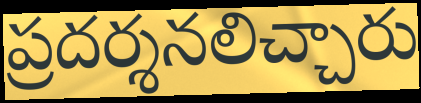
ప్రదర్శనలిచ్చారు